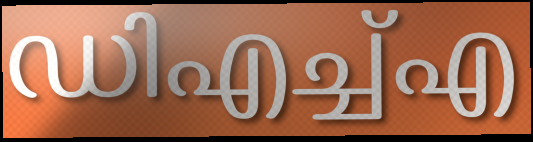
ഡിഎച്ച്എ